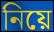
নিয়ে